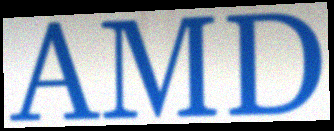
AMD